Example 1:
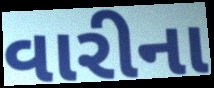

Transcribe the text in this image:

વારીના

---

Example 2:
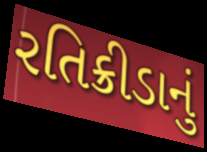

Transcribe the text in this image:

રતિક્રીડાનું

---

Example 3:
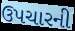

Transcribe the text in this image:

ઉપચારની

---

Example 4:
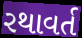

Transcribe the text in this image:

રથાવર્ત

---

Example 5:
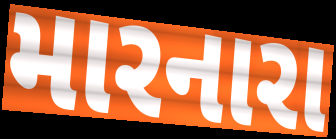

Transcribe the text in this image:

મારનારા